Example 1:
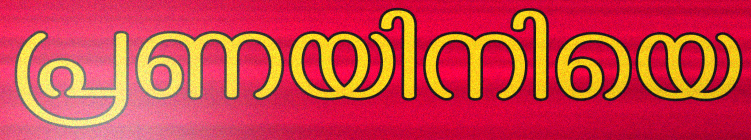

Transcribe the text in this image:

പ്രണയിനിയെ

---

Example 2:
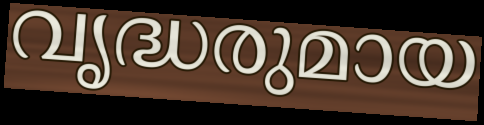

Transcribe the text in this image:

വൃദ്ധരുമായ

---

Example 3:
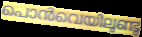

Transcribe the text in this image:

പൊൻവെയിലുണ്ടു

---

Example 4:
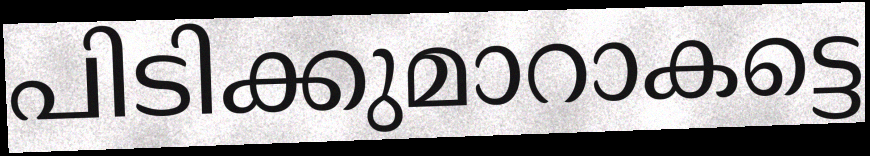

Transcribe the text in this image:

പിടിക്കുമാറാകട്ടെ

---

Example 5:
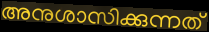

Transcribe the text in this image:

അനുശാസിക്കുന്നത്